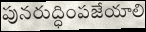
పునరుద్ధింపజేయాలి